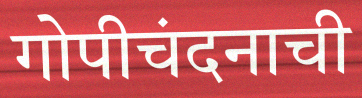
गोपीचंदनाची